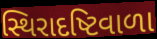
સ્થિરાદષ્ટિવાળા